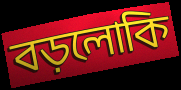
বড়লোকি